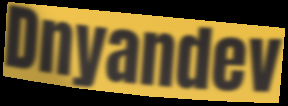
Dnyandev